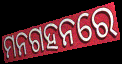
ମନଗହନରେ